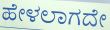
ಹೇಳಲಾಗದೇ